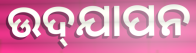
ଉଦ୍‌ଯାପନ